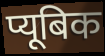
प्यूबिक